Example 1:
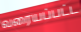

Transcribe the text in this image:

வரையப்பட்ட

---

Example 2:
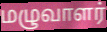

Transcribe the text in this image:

மழுவாளர்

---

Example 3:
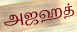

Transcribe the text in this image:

அஜஹத்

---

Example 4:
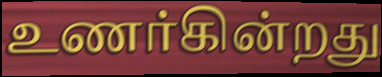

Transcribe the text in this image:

உணர்கின்றது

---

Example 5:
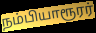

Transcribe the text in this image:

நம்பியாரூரர்